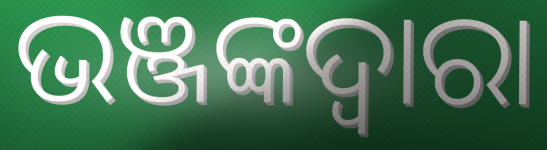
ଭଞ୍ଜଙ୍କଦ୍ୱାରା